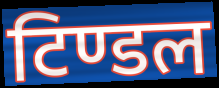
टिण्डल